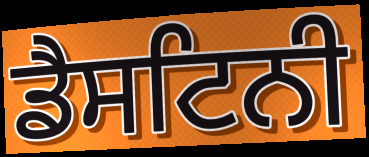
ਡੈਸਟਿਨੀ